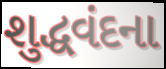
શુદ્ધવંદના